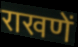
राखणें